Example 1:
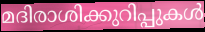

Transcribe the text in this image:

മദിരാശിക്കുറിപ്പുകൾ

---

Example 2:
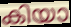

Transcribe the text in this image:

കിയാ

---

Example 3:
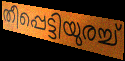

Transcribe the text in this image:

തീപ്പെട്ടിയുരച്ച്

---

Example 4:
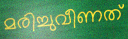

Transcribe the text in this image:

മരിച്ചുവീണത്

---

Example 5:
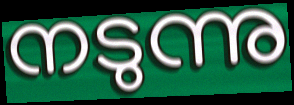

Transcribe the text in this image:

നടുന്നു